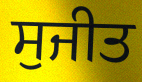
ਸੁਜੀਤ